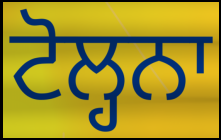
ਟੋਲ੍ਹਨਾ